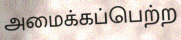
அமைக்கப்பெற்ற